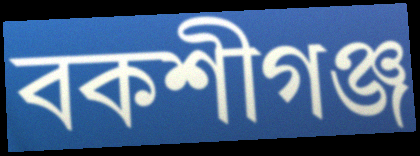
বকশীগঞ্জ